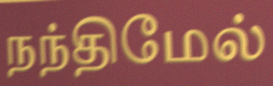
நந்திமேல்